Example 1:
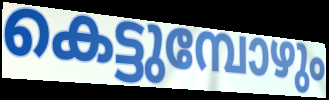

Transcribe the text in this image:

കെട്ടുമ്പോഴും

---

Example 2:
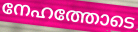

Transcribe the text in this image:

നേഹത്തോടെ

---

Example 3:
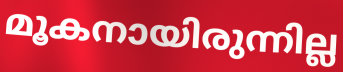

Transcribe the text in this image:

മൂകനായിരുന്നില്ല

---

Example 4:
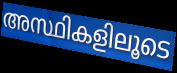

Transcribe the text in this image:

അസ്ഥികളിലൂടെ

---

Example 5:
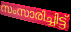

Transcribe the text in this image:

സംസാരിച്ചിട്ട്